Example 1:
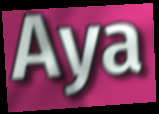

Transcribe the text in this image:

Aya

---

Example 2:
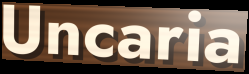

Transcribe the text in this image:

Uncaria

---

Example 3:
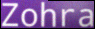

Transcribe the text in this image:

Zohra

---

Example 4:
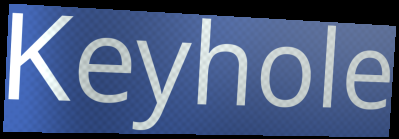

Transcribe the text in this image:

Keyhole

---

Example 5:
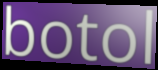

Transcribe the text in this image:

botol